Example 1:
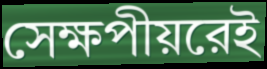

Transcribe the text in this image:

সেক্ষপীয়রেই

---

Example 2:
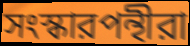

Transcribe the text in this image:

সংস্কারপন্থীরা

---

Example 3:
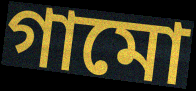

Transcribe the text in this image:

গামো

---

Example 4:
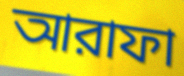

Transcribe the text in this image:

আরাফা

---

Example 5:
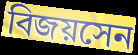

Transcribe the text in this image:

বিজয়সেন